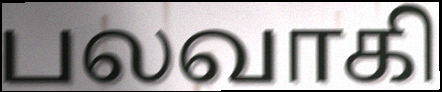
பலவாகி